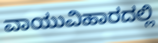
ವಾಯುವಿಹಾರದಲ್ಲಿ